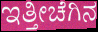
ಇತ್ತೀಚೆಗಿನ